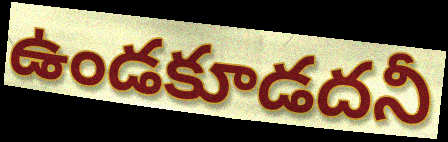
ఉండకూడదనీ